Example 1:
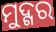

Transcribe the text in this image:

ମୁଦ୍ଗର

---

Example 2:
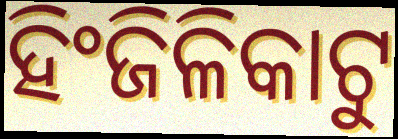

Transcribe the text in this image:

ହିଂଜିଳିକାଟୁ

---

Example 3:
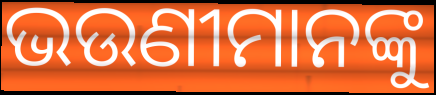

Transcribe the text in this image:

ଭଉଣୀମାନଙ୍କୁ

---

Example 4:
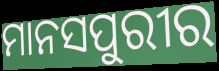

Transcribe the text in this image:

ମାନସପୁରୀର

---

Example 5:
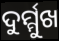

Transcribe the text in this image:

ଦୁର୍ମ୍ମୁଖ